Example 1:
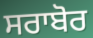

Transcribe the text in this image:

ਸਰਾਬੋਰ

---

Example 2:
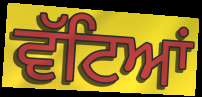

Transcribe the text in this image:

ਵੱਟਿਆਂ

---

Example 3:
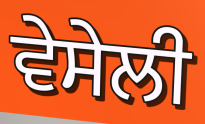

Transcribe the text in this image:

ਵੇਸੇਲੀ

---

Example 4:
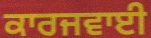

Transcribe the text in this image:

ਕਾਰਜਵਾਈ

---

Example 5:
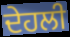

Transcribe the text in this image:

ਦੇਹਲੀ